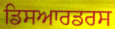
ਡਿਸਆਰਡਰਸ